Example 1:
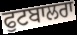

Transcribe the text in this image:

ਫੁਟਬਾਲਰਾ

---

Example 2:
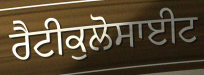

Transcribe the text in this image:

ਰੈਟੀਕੁਲੋਸਾਈਟ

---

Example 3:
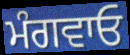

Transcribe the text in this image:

ਮੰਗਵਾਓ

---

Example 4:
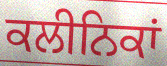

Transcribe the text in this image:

ਕਲੀਨਿਕਾਂ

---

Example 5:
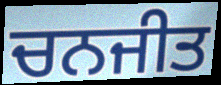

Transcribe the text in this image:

ਚਨਜੀਤ